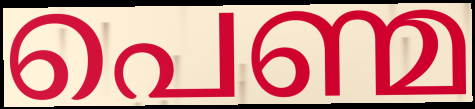
പെണ്മ